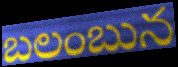
బలంబున